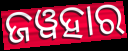
ଜୱହାର